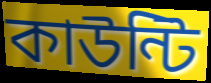
কাউন্টি